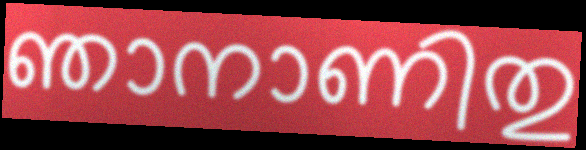
ഞാനാണിതു